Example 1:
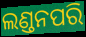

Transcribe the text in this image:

ଲଣ୍ଡନପରି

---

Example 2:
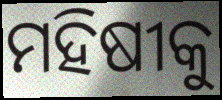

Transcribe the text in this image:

ମହିଷୀକୁ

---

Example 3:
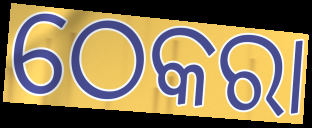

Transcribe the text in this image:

ଠେକରା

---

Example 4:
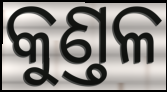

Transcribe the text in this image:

କୁଣ୍ତଳ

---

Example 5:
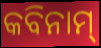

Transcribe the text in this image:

କବିନାମ୍